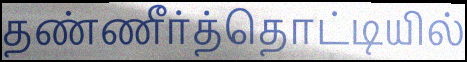
தண்ணீர்த்தொட்டியில்